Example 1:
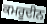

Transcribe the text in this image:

ਕਮਰੂਦੀਨ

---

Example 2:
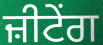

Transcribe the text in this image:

ਜ਼ੀਟੇਂਗ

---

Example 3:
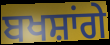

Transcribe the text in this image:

ਬਖਸ਼ਾਂਗੇ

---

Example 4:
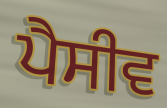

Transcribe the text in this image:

ਪੈਸੀਵ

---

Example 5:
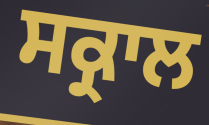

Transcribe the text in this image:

ਸਕ੍ਰਾਲ